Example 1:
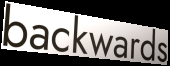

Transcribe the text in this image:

backwards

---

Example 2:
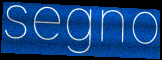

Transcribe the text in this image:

segno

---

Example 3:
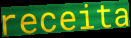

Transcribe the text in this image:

receita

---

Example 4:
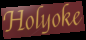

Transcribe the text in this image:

Holyoke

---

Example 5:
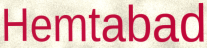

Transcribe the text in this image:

Hemtabad